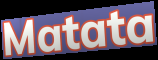
Matata